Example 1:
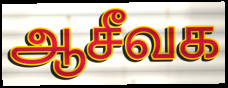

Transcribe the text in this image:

ஆசீவக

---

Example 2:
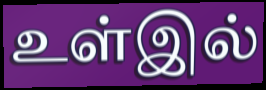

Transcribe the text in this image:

உள்இல்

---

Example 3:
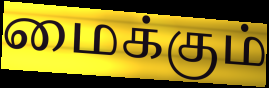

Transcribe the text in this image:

மைக்கும்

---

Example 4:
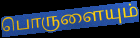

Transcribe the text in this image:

பொருளையும்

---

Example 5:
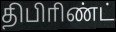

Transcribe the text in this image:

திபிரிண்ட்